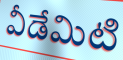
వీడేమిటి